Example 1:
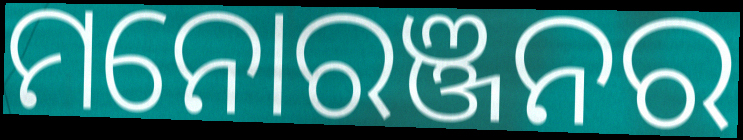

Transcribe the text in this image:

ମନୋରଞ୍ଜନର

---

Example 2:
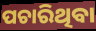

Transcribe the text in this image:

ପଚାରିଥିବା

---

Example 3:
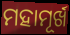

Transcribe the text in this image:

ମହାମୂର୍ଖ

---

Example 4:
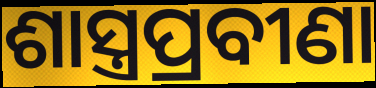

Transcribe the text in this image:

ଶାସ୍ତ୍ରପ୍ରବୀଣା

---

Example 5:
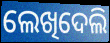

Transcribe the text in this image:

ଲେଖିଦେଲି